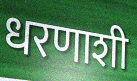
धरणाशी